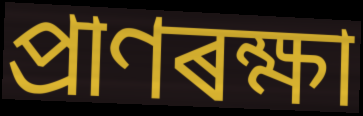
প্ৰাণৰক্ষা